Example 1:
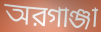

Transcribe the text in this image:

অরগাঞ্জা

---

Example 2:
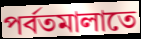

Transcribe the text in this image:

পর্বতমালাতে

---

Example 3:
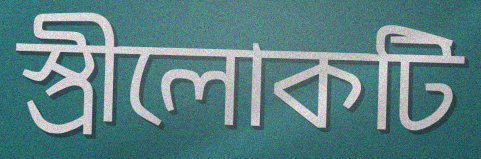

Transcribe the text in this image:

স্ত্রীলোকটি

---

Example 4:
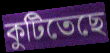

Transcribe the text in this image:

কুটিতেছে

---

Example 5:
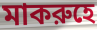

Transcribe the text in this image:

মাকরুহে